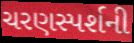
ચરણસ્પર્શની